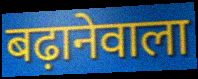
बढ़ानेवाला